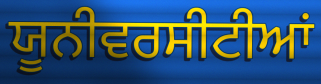
ਯੂਨੀਵਰਸੀਟੀਆਂ